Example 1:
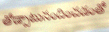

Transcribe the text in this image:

తోడ్పాటునందించడంతో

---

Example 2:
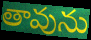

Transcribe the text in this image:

తావును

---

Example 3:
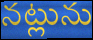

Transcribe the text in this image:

నట్లును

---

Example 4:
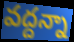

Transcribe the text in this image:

వద్దన్నా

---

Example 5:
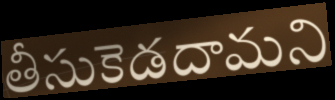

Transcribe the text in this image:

తీసుకెడదామని